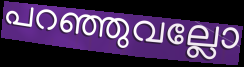
പറഞ്ഞുവല്ലോ